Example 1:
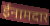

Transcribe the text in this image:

ईनामदार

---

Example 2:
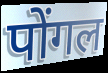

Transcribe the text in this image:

पोंगल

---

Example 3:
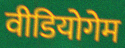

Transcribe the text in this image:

वीडियोगेम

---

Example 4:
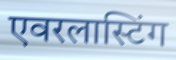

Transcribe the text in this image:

एवरलास्टिंग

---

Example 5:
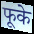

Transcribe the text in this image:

फूके